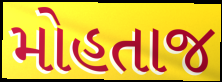
મોહતાજ